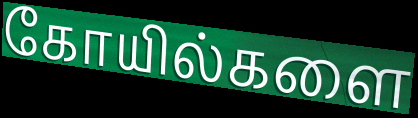
கோயில்களை